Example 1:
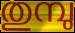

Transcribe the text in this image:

തുമ്പു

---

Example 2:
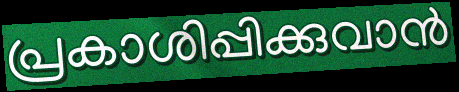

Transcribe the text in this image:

പ്രകാശിപ്പിക്കുവാൻ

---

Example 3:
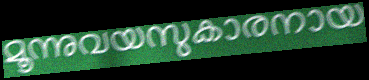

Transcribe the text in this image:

മൂന്നുവയസുകാരനായ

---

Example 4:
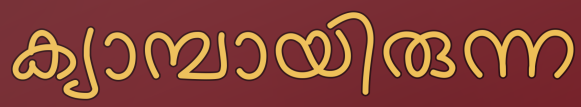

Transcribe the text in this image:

ക്യാമ്പായിരുന്ന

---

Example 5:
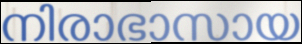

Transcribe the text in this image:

നിരാഭാസായ